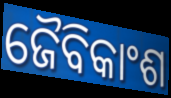
ଜୈବିକାଂଶ